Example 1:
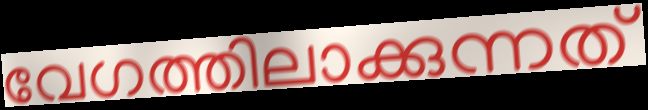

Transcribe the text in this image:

വേഗത്തിലാക്കുന്നത്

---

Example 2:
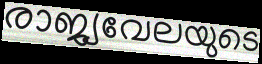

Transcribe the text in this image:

രാജ്യവേലയുടെ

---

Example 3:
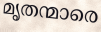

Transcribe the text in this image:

മൃതന്മാരെ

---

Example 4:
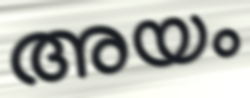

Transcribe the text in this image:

അയം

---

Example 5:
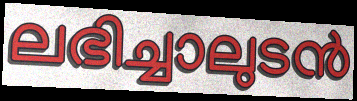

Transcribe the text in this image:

ലഭിച്ചാലുടൻ